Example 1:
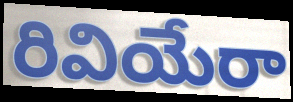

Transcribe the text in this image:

రివియేరా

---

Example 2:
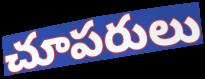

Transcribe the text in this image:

చూపరులు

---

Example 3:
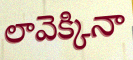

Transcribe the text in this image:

లావెక్కినా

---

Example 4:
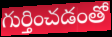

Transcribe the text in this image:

గుర్తించడంతో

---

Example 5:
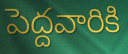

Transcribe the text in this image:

పెద్దవారికి